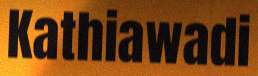
Kathiawadi